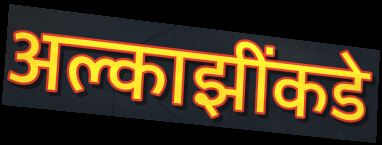
अल्काझींकडे